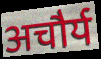
अचौर्य